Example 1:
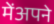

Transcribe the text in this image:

मेंअपने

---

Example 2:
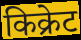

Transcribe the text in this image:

किक्रेट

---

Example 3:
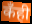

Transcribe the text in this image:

कँही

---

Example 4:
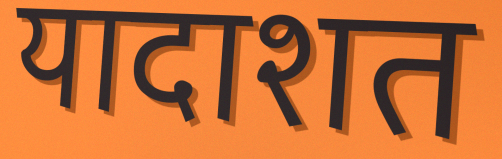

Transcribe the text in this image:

यादाशत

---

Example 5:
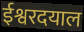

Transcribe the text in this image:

ईश्वरदयाल